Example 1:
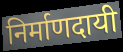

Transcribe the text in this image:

निर्माणदायी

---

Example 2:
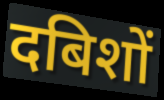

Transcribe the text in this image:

दबिशों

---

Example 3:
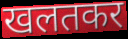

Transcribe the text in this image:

खलतकर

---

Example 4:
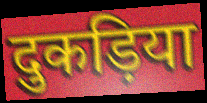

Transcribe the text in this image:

दुकड़िया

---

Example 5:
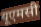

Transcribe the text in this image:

यूएमसी